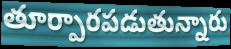
తూర్పారపడుతున్నారు